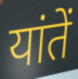
यांतें